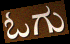
ಓಗು